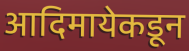
आदिमायेकडून